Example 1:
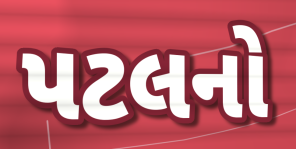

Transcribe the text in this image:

પટલનો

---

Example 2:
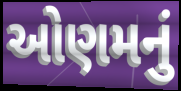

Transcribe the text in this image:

ઓણમનું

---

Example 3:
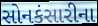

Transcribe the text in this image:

સોનકંસારીના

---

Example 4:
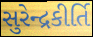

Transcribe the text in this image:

સુરેન્દ્રકીર્તિ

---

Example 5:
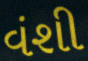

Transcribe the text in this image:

વંશી